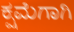
ಕ್ಷಮೆಗಾಗಿ